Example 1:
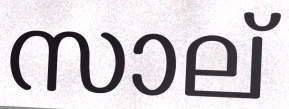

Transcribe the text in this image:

സാല്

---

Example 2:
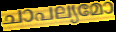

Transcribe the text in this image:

ചാപല്യമോ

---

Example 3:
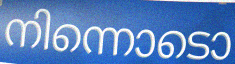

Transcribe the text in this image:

നിന്നൊടൊ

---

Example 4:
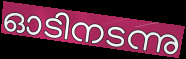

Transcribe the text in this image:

ഓടിനടന്നു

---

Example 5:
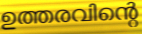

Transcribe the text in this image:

ഉത്തരവിന്റെ